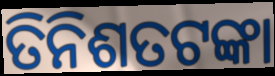
ତିନିଶତଟଙ୍କା